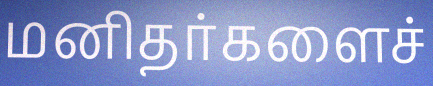
மனிதர்களைச்